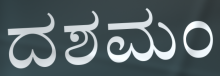
ದಶಮಂ